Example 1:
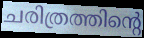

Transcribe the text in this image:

ചരിത്രത്തിന്റെ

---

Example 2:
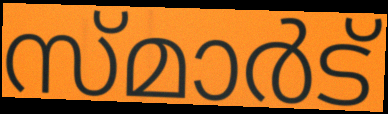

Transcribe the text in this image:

സ്മാർട്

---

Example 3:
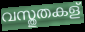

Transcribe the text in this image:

വസ്തുതകള്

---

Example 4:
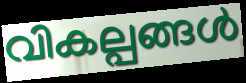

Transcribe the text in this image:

വികല്പങ്ങൾ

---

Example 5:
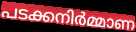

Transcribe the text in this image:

പടക്കനിർമ്മാണ